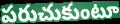
పరుచుకుంటూ